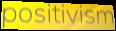
positivism